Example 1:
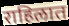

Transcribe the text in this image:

राहिलात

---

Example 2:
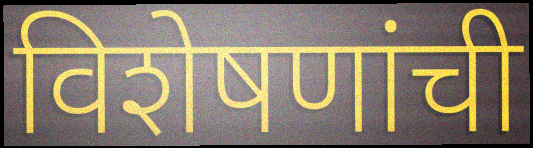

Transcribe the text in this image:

विशेषणांची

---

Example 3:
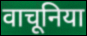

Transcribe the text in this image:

वाचूनिया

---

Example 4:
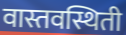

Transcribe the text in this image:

वास्तवस्थिती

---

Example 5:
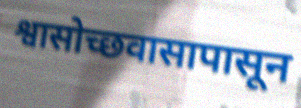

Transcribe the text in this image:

श्वासोच्छवासापासून